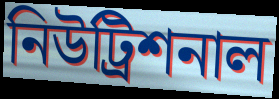
নিউট্রিশনাল